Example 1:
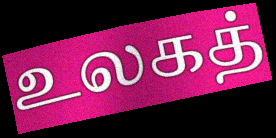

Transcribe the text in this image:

உலகத்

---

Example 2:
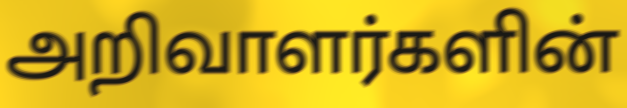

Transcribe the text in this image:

அறிவாளர்களின்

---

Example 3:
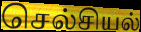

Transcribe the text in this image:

செல்சியல்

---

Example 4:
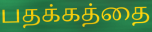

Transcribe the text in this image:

பதக்கத்தை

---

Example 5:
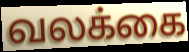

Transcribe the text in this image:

வலக்கை